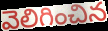
వెలిగించిన